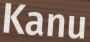
Kanu